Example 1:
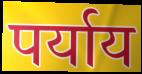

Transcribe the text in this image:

पर्याय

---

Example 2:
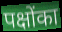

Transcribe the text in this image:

पक्षोंका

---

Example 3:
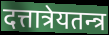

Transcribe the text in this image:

दत्तात्रेयतन्त्र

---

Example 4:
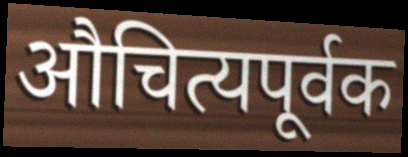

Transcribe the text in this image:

औचित्यपूर्वक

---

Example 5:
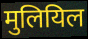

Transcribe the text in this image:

मुलियिल